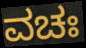
ವಚಃ